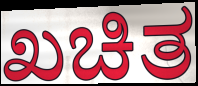
ಖಚಿತ